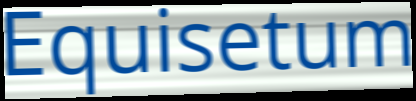
Equisetum